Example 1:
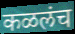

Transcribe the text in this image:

कळलंच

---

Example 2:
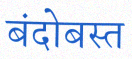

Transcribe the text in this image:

बंदोबस्त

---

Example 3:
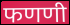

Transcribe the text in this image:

फणणी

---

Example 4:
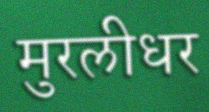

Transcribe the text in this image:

मुरलीधर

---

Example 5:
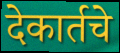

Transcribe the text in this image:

देकार्तचे